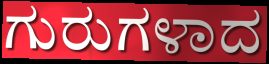
ಗುರುಗಳಾದ